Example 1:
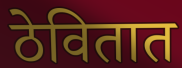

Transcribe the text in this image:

ठेवितात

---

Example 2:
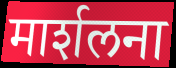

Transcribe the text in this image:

मार्शलना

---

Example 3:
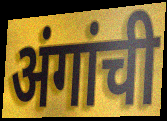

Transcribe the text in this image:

अंगांची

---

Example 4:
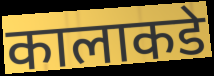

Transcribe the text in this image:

कालाकडे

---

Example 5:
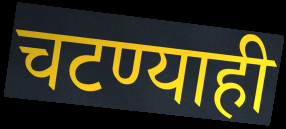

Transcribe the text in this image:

चटण्याही